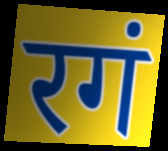
रगं